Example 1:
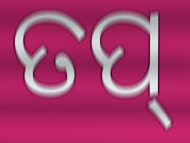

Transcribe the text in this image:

ତପ୍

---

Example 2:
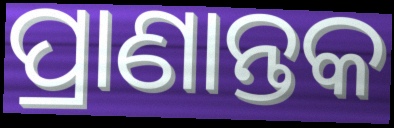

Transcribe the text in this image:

ପ୍ରାଣାନ୍ତକ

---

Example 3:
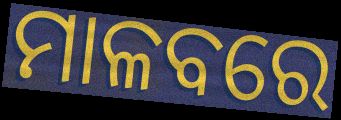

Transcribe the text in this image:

ମାଳବରେ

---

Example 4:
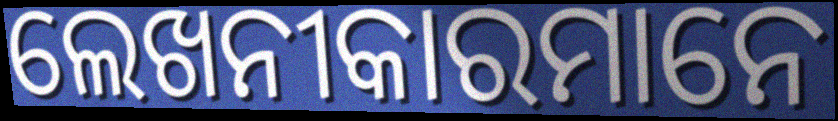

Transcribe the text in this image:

ଲେଖନୀକାରମାନେ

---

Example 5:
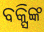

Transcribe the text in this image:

ବକ୍ସିଙ୍କ